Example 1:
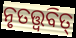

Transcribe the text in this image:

ନୃତତ୍ତ୍ୱବିତ୍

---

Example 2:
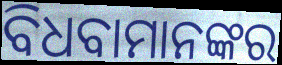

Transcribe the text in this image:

ବିଧବାମାନଙ୍କର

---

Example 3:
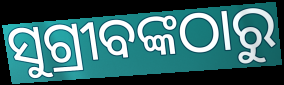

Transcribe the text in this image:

ସୁଗ୍ରୀବଙ୍କଠାରୁ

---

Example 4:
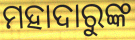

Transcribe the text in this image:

ମହାଦାରୁଙ୍କ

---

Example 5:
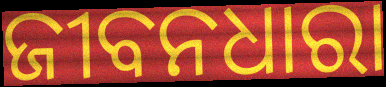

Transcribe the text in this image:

ଜୀବନଧାରା